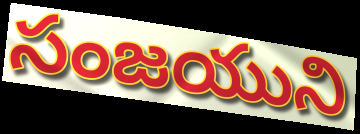
సంజయుని